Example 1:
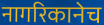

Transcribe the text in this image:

नागरिकानेच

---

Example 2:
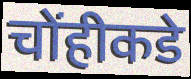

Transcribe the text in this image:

चोंहीकडे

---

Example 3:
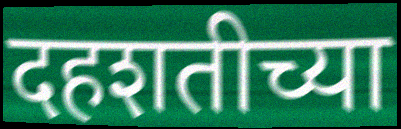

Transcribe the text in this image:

दहशतीच्या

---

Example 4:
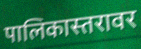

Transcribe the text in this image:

पालिकास्तरावर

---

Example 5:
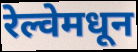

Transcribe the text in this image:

रेल्वेमधून